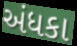
અંધકા